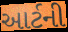
આર્ટની